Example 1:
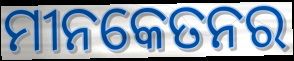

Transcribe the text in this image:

ମୀନକେତନର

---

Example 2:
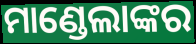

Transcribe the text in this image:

ମାଣ୍ଡେଲାଙ୍କର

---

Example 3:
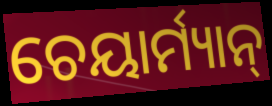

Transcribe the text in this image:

ଚେୟାର୍ମ୍ୟାନ୍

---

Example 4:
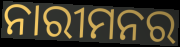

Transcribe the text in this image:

ନାରୀମନର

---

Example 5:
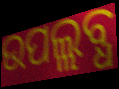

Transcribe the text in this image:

ଉପଲ୍ଲବ୍ଧ